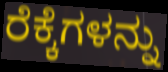
ರೆಕ್ಕೆಗಳನ್ನು